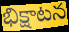
భిక్షాటన